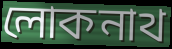
লোকনাথ